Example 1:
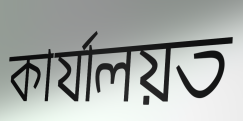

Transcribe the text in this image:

কাৰ্যালয়ত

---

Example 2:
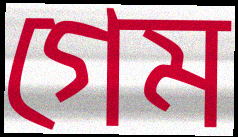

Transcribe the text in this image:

গেম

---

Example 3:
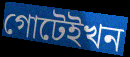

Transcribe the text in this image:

গোটেইখন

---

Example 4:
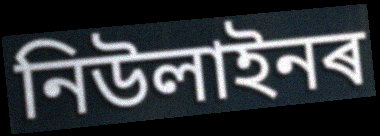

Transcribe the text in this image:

নিউলাইনৰ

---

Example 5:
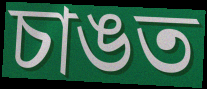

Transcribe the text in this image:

চাঙত